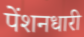
पेंशनधारी